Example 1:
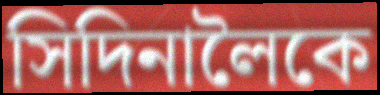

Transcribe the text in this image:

সিদিনালৈকে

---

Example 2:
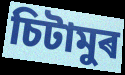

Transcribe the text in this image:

চিটামুৰ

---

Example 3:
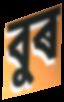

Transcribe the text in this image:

বুৰ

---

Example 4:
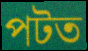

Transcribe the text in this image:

পটত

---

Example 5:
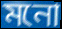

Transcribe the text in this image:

মনো